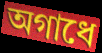
অগাধে